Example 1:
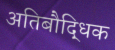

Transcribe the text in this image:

अतिबौद्धिक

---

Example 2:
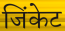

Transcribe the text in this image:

जिंकेट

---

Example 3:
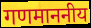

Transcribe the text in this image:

गणमाननीय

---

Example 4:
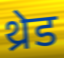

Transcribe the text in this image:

थ्रेड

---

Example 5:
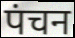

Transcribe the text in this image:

पंचन